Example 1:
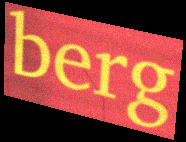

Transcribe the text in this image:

berg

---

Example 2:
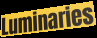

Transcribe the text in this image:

Luminaries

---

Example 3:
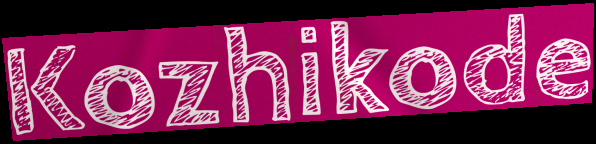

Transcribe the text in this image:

Kozhikode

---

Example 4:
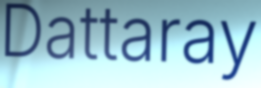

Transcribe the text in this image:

Dattaray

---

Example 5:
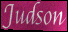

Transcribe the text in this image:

Judson